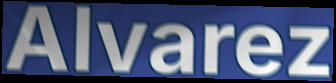
Alvarez